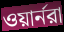
ওয়ার্নরা